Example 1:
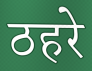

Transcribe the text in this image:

ठहरे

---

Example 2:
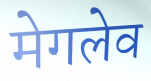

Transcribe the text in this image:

मेगलेव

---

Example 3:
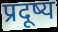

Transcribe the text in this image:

प्रदूष्य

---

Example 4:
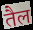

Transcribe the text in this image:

तैल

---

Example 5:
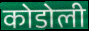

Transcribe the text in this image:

कोडोली